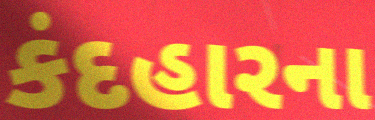
કંદહારના